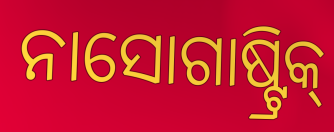
ନାସୋଗାଷ୍ଟ୍ରିକ୍